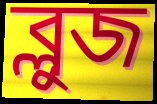
ব্লুজ